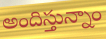
అందిస్తున్నాం